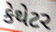
કેથેટર